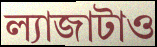
ল্যাজাটাও